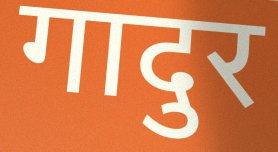
गादुर